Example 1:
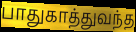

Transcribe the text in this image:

பாதுகாத்துவந்த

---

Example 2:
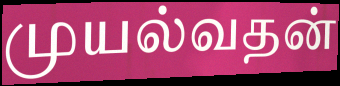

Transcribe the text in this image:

முயல்வதன்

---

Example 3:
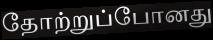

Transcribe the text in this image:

தோற்றுப்போனது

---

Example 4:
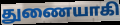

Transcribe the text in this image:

துணையாகி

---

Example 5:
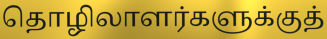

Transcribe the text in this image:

தொழிலாளர்களுக்குத்